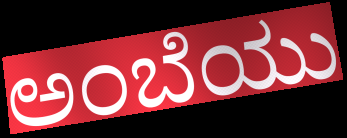
ಅಂಬೆಯು